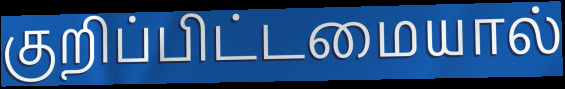
குறிப்பிட்டமையால்